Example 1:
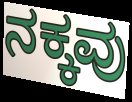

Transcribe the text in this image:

ನಕ್ಕವು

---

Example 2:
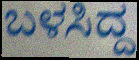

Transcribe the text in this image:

ಬಳಸಿದ್ದ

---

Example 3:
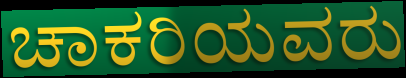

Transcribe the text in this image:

ಚಾಕರಿಯವರು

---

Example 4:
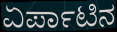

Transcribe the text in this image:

ಏರ್ಪಾಟಿನ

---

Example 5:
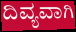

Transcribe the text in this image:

ದಿವ್ಯವಾಗಿ